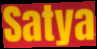
Satya